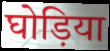
घोड़िया